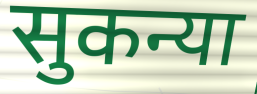
सुकन्या